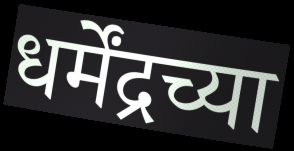
धर्मेंद्रच्या